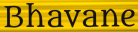
Bhavane